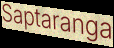
Saptaranga